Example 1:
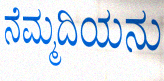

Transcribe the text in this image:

ನೆಮ್ಮದಿಯನು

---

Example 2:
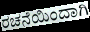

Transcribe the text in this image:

ರಚನೆಯಿಂದಾಗಿ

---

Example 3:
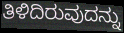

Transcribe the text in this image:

ತಿಳಿದಿರುವುದನ್ನು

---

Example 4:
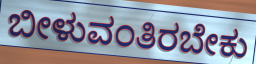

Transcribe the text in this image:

ಬೀಳುವಂತಿರಬೇಕು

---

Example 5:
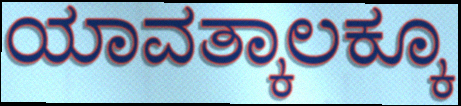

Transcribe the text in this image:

ಯಾವತ್ಕಾಲಕ್ಕೂ